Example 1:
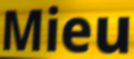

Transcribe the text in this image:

Mieu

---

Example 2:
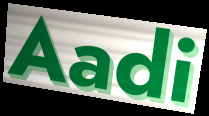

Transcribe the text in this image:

Aadi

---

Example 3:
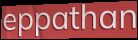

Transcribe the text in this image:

eppathan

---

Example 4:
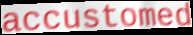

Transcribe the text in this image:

accustomed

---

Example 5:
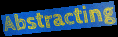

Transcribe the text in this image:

Abstracting